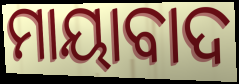
ମାୟାବାଦ